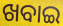
ଖବାଇ